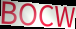
BOCW